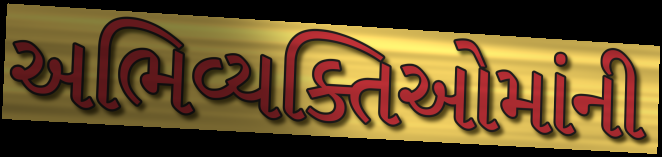
અભિવ્યક્તિઓમાંની